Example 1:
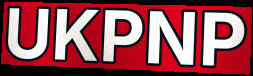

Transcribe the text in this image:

UKPNP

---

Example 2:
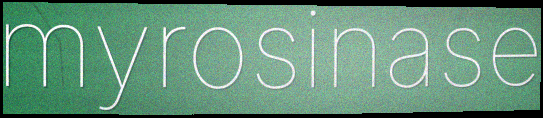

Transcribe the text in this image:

myrosinase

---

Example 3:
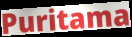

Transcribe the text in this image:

Puritama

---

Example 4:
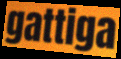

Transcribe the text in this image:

gattiga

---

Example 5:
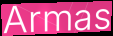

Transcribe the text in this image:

Armas